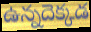
ఉన్నదెక్కడ